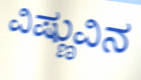
ವಿಷ್ಣುವಿನ